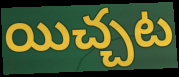
యిచ్చట